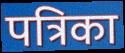
पत्रिका